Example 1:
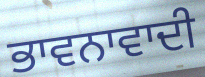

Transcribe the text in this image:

ਭਾਵਨਾਵਾਦੀ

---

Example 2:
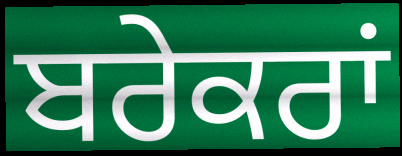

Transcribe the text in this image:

ਬਰੇਕਰਾਂ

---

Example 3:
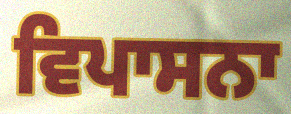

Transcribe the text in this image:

ਵਿਪਾਸਨਾ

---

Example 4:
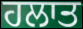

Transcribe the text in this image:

ਹਲਾਤ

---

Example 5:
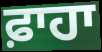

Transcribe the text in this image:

ਫ਼ਾਹਾ